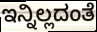
ಇನ್ನಿಲ್ಲದಂತೆ